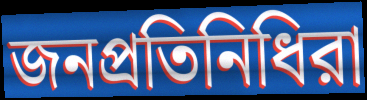
জনপ্রতিনিধিরা